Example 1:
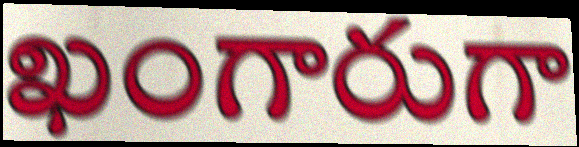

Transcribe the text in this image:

ఖంగారుగా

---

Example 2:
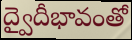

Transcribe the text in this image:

ద్వైదీభావంతో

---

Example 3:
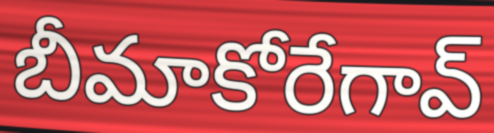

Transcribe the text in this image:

బీమాకోరేగావ్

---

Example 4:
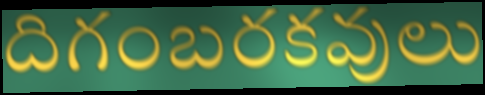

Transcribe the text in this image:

దిగంబరకవులు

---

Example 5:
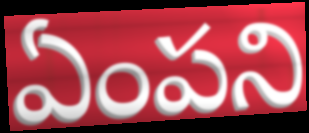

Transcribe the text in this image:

ఏంపని